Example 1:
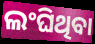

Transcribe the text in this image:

ଲଂଘିଥିବା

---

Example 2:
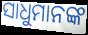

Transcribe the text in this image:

ସାଧୁମାନଙ୍କ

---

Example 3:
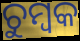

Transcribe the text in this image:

ଚୁମ୍ବକ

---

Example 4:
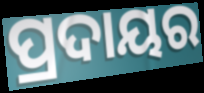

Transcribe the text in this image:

ପ୍ରଦାୟର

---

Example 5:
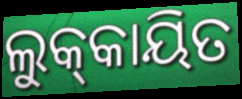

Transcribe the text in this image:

ଲୁକ୍‌କାୟିତ